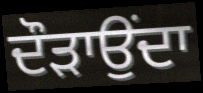
ਦੌੜਾਉਂਦਾ